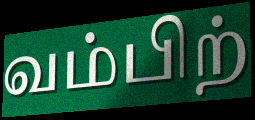
வம்பிற்